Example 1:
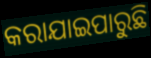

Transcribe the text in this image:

କରାଯାଇପାରୁଛି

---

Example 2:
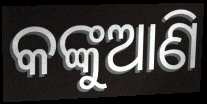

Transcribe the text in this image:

କଙ୍କୁଆଣି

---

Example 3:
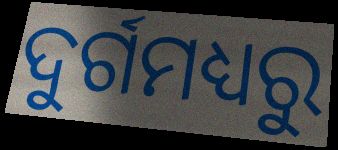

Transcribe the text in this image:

ଦୁର୍ଗମଧ୍ୟରୁ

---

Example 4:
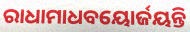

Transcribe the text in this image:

ରାଧାମାଧବୟୋର୍ଜୟନ୍ତି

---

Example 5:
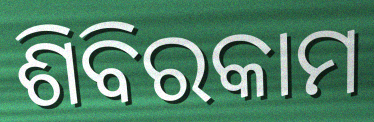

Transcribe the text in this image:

ଶିବିରକାମ